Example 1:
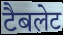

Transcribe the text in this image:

टैबलेट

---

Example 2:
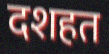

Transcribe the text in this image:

दशहत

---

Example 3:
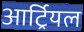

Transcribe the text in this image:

आर्ट्रियल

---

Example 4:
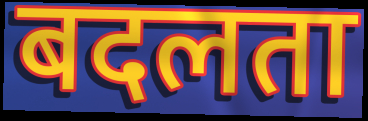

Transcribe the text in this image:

बदलता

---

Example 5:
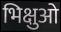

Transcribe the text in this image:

भिक्षुओ